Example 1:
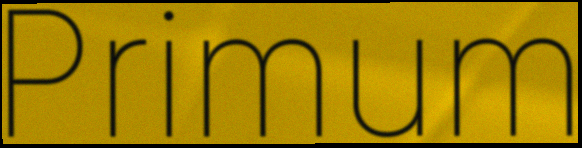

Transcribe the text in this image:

Primum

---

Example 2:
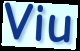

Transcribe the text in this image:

Viu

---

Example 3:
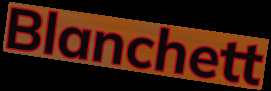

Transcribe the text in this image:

Blanchett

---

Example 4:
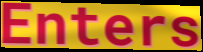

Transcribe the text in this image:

Enters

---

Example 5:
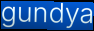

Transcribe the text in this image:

gundya